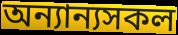
অন্যান্যসকল